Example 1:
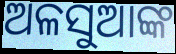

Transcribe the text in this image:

ଅଳସୁଆଙ୍କ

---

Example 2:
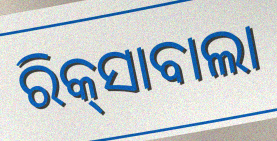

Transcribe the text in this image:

ରିକ୍‍ସାବାଲା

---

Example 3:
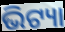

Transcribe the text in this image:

ଭିଟ୍ୟା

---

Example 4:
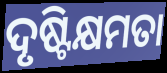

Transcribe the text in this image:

ଦୃଷ୍ଟିକ୍ଷମତା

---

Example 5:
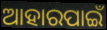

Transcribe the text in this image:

ଆହାରପାଇଁ